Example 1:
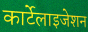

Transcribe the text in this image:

कार्टेलाइजेशन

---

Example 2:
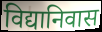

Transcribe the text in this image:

विद्यानिवास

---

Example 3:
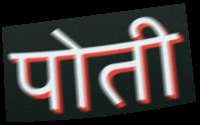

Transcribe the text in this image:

पोती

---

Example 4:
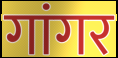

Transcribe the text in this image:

गांगर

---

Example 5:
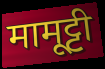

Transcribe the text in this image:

मामूट्टी